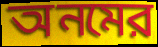
অনমের